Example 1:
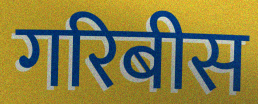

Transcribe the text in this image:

गरिबीस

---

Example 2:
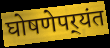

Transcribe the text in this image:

घोषणेपर्यंत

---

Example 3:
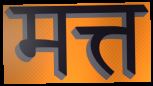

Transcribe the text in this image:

मत्त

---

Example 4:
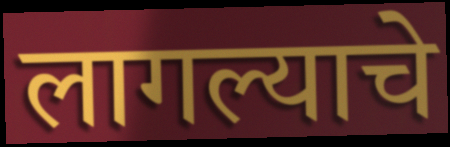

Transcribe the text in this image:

लागल्याचे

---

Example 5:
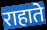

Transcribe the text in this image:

राहाते